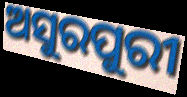
ଅସୁରପୁରୀ